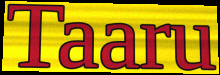
Taaru